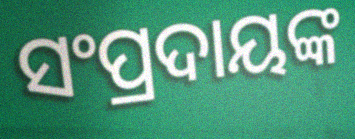
ସଂପ୍ରଦାୟଙ୍କ